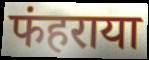
फंहराया